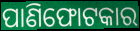
ପାଣିଫୋଟକାର